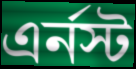
এর্নস্ট